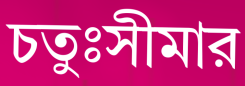
চতুঃসীমার